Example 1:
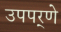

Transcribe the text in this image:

उपपर्णे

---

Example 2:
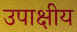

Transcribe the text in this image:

उपाक्षीय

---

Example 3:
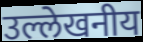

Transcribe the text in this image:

उल्लेखनीय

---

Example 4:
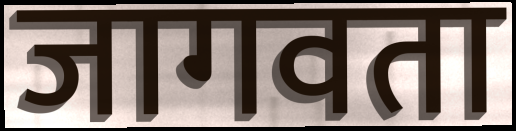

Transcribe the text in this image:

जागवता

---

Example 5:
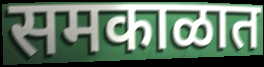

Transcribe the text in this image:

समकाळात